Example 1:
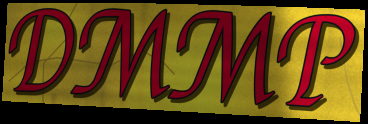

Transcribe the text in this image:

DMMP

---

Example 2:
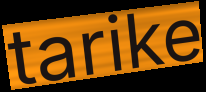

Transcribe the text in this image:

tarike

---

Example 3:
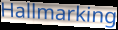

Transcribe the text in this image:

Hallmarking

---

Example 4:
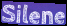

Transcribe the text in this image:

Silene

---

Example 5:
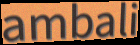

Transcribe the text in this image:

ambali